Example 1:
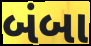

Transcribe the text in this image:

બંબા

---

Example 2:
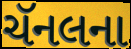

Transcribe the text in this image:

ચૅનલના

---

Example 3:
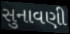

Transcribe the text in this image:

સુનાવણી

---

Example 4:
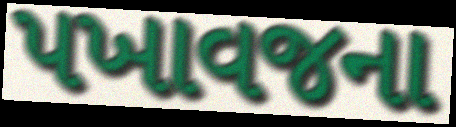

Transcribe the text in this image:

પખાવજના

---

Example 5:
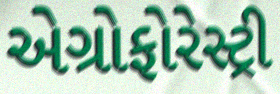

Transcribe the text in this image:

એગ્રોફોરેસ્ટ્રી